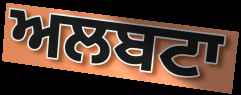
ਅਲਬਟਾ